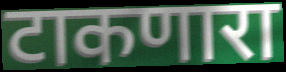
टाकणारा